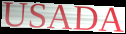
USADA